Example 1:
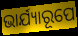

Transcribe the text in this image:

ଭାର୍ଯ୍ୟାରୂପେ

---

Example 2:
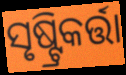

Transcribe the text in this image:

ସୃଷ୍ଟ୍ରିକର୍ତ୍ତା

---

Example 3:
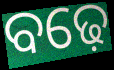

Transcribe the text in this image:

ବଢ଼େ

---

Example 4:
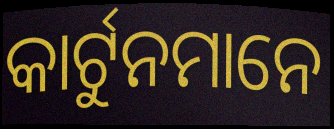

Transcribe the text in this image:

କାର୍ଟୁନମାନେ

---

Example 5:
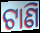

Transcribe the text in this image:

ଟାଣି